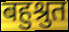
बहुश्रुत